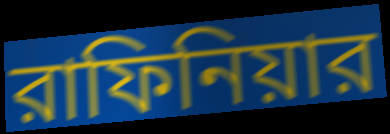
রাফিনিয়ার